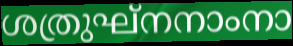
ശത്രുഘ്നനാംനാ